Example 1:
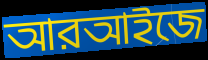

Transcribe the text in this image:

আরআইজে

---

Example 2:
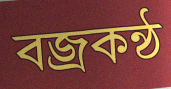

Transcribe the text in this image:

বজ্রকন্ঠ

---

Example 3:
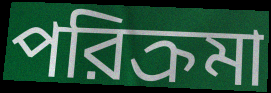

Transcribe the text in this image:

পরিক্রমা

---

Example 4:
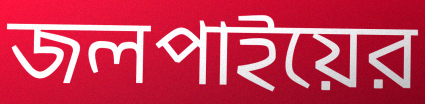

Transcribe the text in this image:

জলপাইয়ের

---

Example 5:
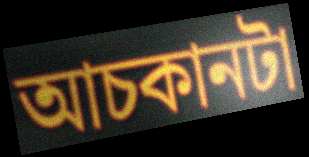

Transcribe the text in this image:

আচকানটা